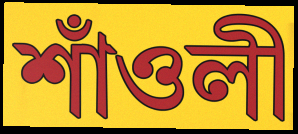
শাঁওলী